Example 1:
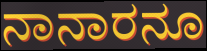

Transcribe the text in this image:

ನಾನಾರನೂ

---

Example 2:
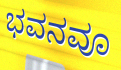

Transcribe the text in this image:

ಭವನವೂ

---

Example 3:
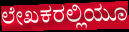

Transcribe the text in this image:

ಲೇಖಕರಲ್ಲಿಯೂ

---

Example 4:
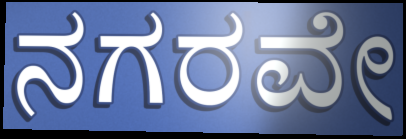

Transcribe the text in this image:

ನಗರವೇ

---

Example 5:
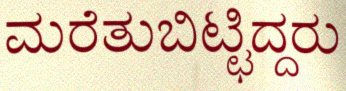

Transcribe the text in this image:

ಮರೆತುಬಿಟ್ಟಿದ್ದರು